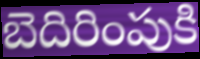
బెదిరింపుకి